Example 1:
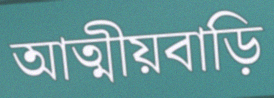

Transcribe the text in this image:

আত্মীয়বাড়ি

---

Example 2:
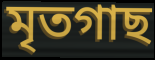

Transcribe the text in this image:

মৃতগাছ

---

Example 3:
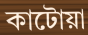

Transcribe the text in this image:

কাটোয়া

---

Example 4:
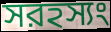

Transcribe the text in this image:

সরহস্যং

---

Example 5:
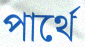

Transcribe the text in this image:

পার্থে